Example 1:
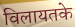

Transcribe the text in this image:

विलायतके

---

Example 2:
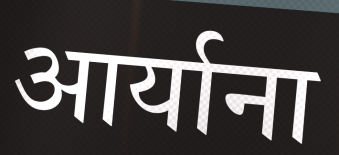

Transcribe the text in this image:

आर्याना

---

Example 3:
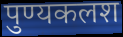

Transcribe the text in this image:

पुण्यकलश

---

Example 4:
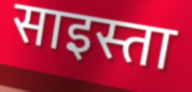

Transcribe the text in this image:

साइस्ता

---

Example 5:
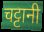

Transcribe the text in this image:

चट्टानी